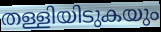
തള്ളിയിടുകയും